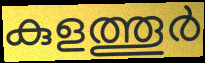
കുളത്തൂർ